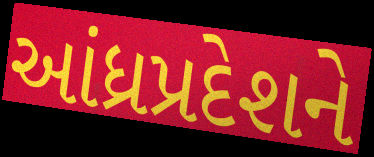
આંધ્રપ્રદેશને